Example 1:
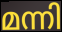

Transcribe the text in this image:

മന്നി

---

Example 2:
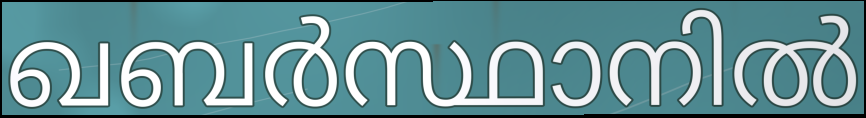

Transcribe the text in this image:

ഖബർസ്ഥാനിൽ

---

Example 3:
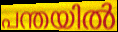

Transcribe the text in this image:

പന്തയിൽ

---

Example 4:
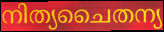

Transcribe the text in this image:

നിത്യചൈതന്യ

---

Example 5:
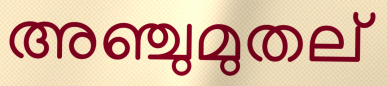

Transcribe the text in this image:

അഞ്ചുമുതല്